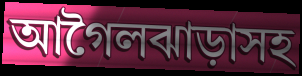
আগৈলঝাড়াসহ